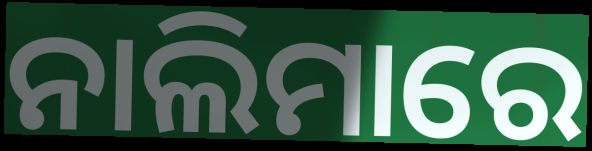
ନାଲିମାରେ